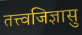
तत्त्वजिज्ञासु